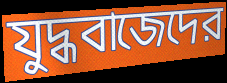
যুদ্ধবাজেদের